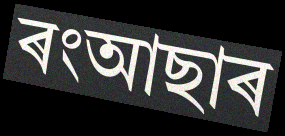
ৰংআছাৰ